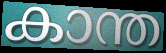
കാന്ത